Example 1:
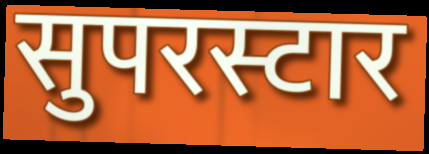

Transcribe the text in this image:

सुपरस्टार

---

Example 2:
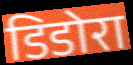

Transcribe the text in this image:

डिडोरा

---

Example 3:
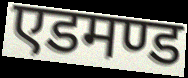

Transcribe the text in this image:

एडमण्ड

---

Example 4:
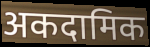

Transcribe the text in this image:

अकदामिक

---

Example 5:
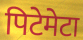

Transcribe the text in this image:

पिटेमेटा